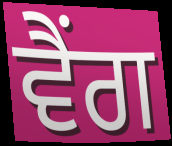
ਵੈਂਗ